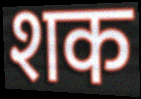
शक